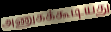
அணுகக்கூடியது